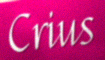
Crius